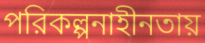
পরিকল্পনাহীনতায়